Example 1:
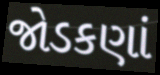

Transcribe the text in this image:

જોડકણાં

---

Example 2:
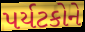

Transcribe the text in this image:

પર્યટકોને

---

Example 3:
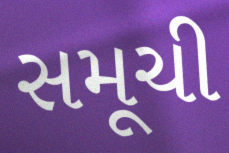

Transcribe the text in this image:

સમૂચી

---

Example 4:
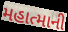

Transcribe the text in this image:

મહાત્માની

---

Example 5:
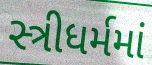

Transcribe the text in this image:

સ્ત્રીધર્મમાં